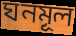
ঘনমূল